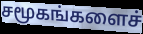
சமூகங்களைச்